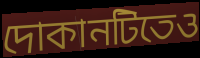
দোকানটিতেও